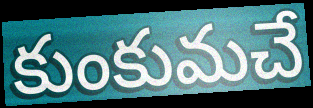
కుంకుమచే